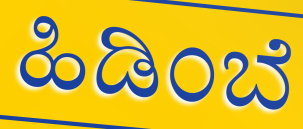
ಹಿಡಿಂಬೆ